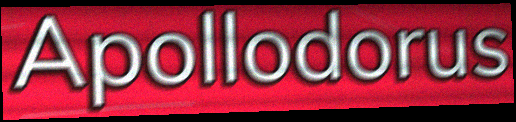
Apollodorus